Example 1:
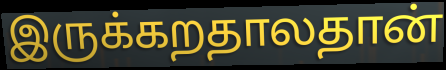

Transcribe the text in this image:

இருக்கறதாலதான்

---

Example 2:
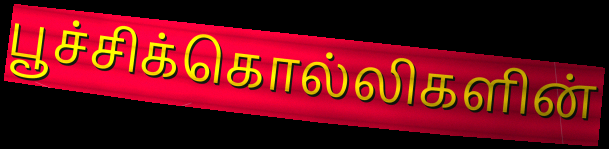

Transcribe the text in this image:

பூச்சிக்கொல்லிகளின்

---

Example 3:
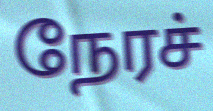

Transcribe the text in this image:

நேரச்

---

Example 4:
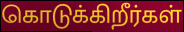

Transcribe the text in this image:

கொடுக்கிறீர்கள்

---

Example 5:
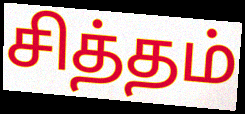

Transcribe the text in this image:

சித்தம்